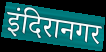
इंदिरानगर